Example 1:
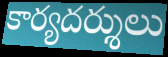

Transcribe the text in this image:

కార్యదర్శులు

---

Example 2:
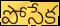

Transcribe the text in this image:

పోసేక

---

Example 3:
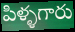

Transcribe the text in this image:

పిళ్ళగారు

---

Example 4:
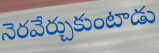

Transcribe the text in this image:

నెరవేర్చుకుంటాడు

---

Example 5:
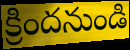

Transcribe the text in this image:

క్రిందనుండి